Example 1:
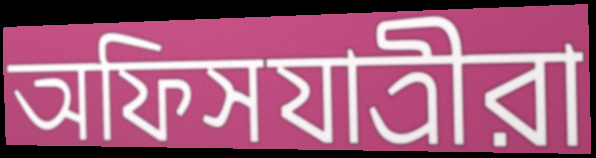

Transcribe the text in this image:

অফিসযাত্রীরা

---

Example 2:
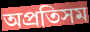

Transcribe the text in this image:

অপ্রতিসম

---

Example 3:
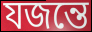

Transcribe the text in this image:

যজন্তে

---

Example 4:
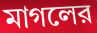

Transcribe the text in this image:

মাগলের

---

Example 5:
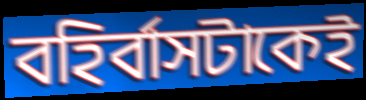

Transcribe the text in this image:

বহির্বাসটাকেই